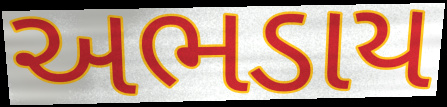
અભડાય